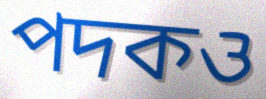
পদকও